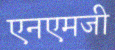
एनएमजी